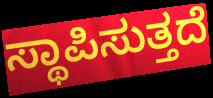
ಸ್ಥಾಪಿಸುತ್ತದೆ